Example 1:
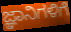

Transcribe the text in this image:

ಜ್ಞಾನಿಗಳಿಗೆ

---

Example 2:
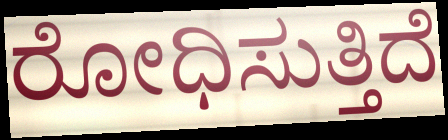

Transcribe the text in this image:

ರೋಧಿಸುತ್ತಿದೆ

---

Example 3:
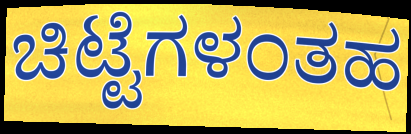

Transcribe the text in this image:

ಚಿಟ್ಟೆಗಳಂತಹ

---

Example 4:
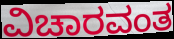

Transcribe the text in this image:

ವಿಚಾರವಂತ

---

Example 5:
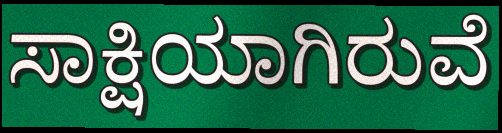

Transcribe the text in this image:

ಸಾಕ್ಷಿಯಾಗಿರುವೆ